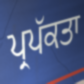
ਪ੍ਰਪੱਕਤਾ